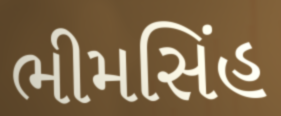
ભીમસિંહ